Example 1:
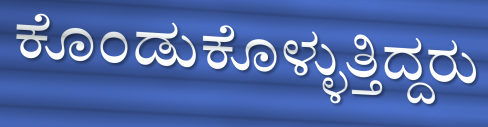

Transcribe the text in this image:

ಕೊಂಡುಕೊಳ್ಳುತ್ತಿದ್ದರು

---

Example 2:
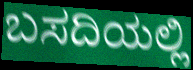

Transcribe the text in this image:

ಬಸದಿಯಲ್ಲಿ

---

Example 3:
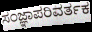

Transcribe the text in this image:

ಸಂಜ್ಞಾಪರಿವರ್ತಕ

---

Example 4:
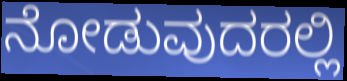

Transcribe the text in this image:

ನೋಡುವುದರಲ್ಲಿ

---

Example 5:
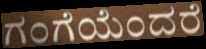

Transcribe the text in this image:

ಗಂಗೆಯೆಂದರೆ